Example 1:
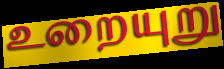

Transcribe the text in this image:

உறையுறு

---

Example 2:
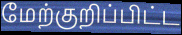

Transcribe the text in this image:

மேற்குறிப்பிட்ட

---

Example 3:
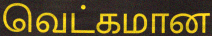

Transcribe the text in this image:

வெட்கமான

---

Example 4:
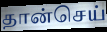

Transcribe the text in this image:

தான்செய்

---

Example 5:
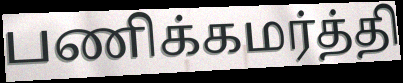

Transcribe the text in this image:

பணிக்கமர்த்தி